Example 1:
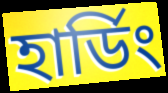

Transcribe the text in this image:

হার্ডিং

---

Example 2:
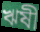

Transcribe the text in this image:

ঋষী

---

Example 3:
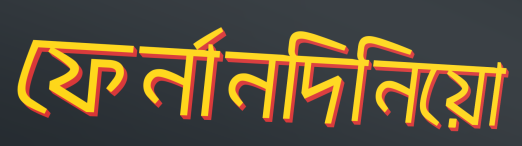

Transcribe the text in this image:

ফের্নানদিনিয়ো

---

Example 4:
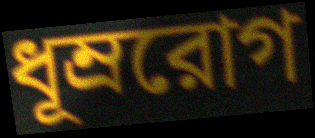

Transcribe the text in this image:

ধূম্ররোগ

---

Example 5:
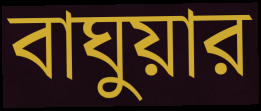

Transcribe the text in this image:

বাঘুয়ার